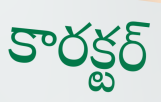
కారక్టర్